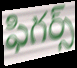
ఫిగర్స్